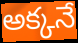
అక్కనే